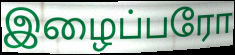
இழைப்பரோ